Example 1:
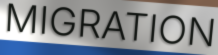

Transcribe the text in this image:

MIGRATION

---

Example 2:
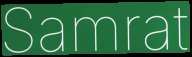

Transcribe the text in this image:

Samrat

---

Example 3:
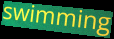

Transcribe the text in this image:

swimming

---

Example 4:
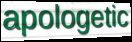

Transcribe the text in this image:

apologetic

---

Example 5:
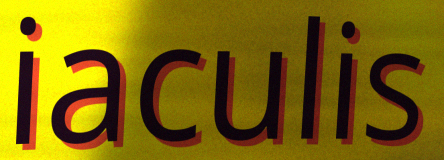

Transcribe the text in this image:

iaculis